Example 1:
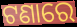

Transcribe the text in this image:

ଟଣାରେ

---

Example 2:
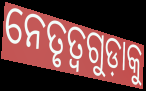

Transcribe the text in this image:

ନେତୃତ୍ୱଗୁଡ଼ାକୁ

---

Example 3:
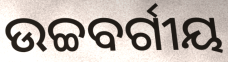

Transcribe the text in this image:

ଉଚ୍ଚବର୍ଗୀୟ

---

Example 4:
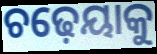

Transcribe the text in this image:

ଚଢ଼େୟାକୁ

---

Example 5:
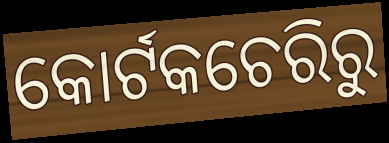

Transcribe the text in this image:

କୋର୍ଟକଚେରିରୁ